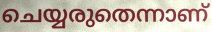
ചെയ്യരുതെന്നാണ്